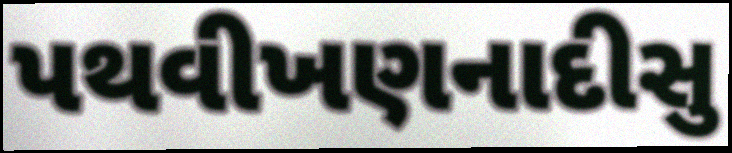
પથવીખણનાદીસુ